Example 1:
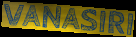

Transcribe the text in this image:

VANASIRI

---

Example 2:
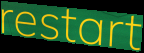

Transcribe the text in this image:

restart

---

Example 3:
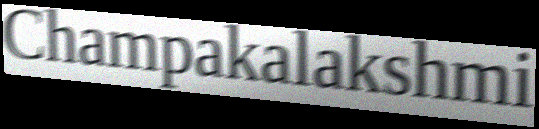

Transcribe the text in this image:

Champakalakshmi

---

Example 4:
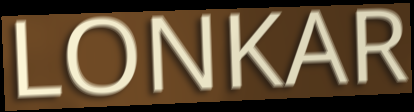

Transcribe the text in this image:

LONKAR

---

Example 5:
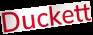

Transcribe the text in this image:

Duckett